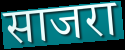
साजरा